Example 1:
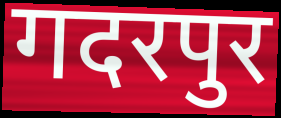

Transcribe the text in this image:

गदरपुर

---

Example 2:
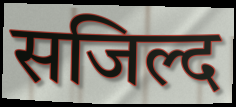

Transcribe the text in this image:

सजिल्द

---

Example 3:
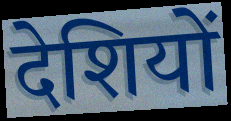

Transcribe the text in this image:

देशियों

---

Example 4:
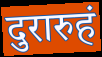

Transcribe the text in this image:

दुरारुहं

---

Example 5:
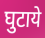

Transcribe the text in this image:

घुटाये